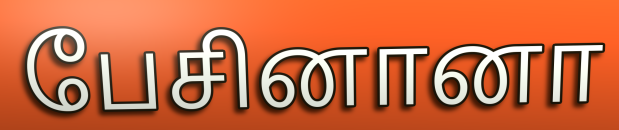
பேசினானா